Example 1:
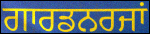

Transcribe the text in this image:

ਗਾਰਡਨਰਜਾਂ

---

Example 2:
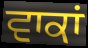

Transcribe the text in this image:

ਵਾਕਾਂ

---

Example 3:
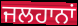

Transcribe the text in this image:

ਜਲਹਾਨਾਂ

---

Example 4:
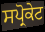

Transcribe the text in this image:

ਸਪ੍ਰੋਕੇਟ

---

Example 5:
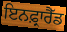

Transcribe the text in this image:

ਇਨਫ਼੍ਰਾਰੈੱਡ